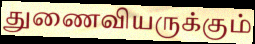
துணைவியருக்கும்